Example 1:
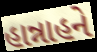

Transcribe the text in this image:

હાન્નાહને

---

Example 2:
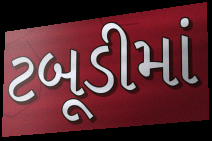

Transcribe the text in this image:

ટબૂડીમાં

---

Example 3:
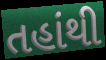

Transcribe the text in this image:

તહાંથી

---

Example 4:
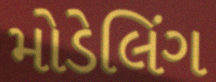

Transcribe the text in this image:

મોડેલિંગ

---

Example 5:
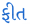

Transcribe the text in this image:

ફીત